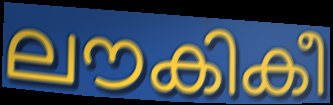
ലൗകികീ